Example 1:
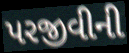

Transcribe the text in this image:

પરજીવીની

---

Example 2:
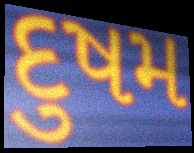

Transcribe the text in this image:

દુષમ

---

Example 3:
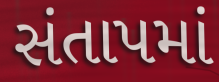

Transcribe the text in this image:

સંતાપમાં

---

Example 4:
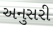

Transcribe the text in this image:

અનુસરી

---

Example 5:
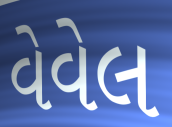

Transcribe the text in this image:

વેવેલ